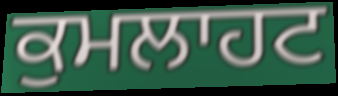
ਕੁਮਲਾਹਟ